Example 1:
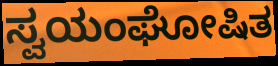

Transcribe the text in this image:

ಸ್ವಯಂಘೋಷಿತ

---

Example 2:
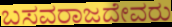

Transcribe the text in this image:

ಬಸವರಾಜದೇವರು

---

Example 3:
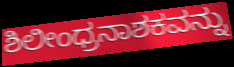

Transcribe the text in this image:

ಶಿಲೀಂಧ್ರನಾಶಕವನ್ನು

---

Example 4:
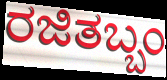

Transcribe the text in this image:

ರಜಿತಬ್ಬಂ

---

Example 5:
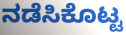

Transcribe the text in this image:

ನಡೆಸಿಕೊಟ್ಟ